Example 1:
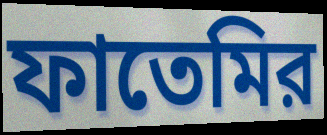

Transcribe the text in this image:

ফাতেমির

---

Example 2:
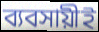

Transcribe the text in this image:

ব্যবসায়ীই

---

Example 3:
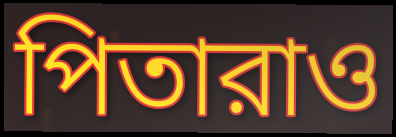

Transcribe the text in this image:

পিতারাও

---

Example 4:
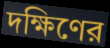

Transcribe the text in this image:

দক্ষিণের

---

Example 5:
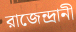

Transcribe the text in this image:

রাজেন্দ্রানী